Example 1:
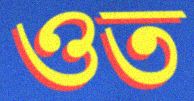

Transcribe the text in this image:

ওত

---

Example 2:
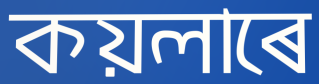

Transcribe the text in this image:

কয়লাৰে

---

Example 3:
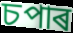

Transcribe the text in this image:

চপাৰ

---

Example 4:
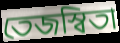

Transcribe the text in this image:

তেজস্বিতা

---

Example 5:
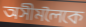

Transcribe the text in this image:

অসীমলৈকে